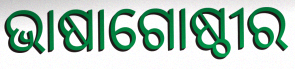
ଭାଷାଗୋଷ୍ଠୀର